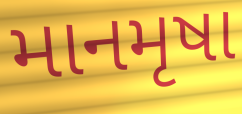
માનમૃષા